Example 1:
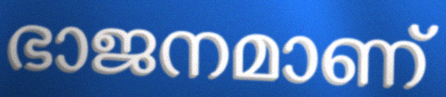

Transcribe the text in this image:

ഭാജനമാണ്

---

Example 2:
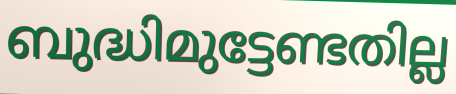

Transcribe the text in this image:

ബുദ്ധിമുട്ടേണ്ടതില്ല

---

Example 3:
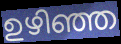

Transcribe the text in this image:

ഉഴിഞ്ഞ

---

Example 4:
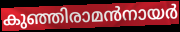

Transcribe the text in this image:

കുഞ്ഞിരാമൻനായർ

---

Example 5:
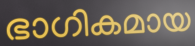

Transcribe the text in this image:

ഭാഗികമായ